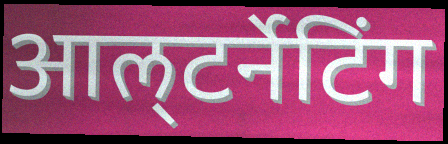
आल्टर्नेटिंग